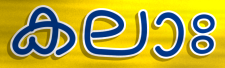
കലാഃ